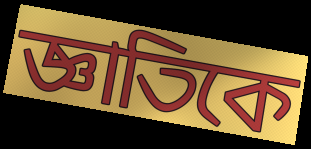
জ্ঞাতিকে